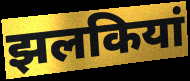
झलकियां